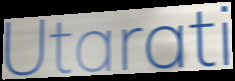
Utarati